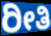
ರೀತಿ